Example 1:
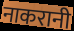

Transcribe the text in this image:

नाकरानी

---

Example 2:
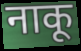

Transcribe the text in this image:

नाकू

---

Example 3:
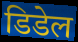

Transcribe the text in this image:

डिडेल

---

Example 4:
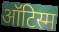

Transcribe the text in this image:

ऑटिस्म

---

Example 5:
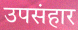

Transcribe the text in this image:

उपसंहार